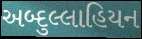
અબ્દુલ્લાહિયન